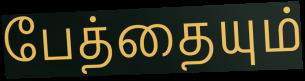
பேத்தையும்